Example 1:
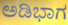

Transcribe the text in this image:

ಅಡಿಭಾಗ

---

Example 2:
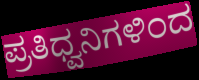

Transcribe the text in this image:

ಪ್ರತಿಧ್ವನಿಗಳಿಂದ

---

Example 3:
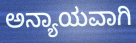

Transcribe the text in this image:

ಅನ್ಯಾಯವಾಗಿ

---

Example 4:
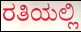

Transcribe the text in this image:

ರತಿಯಲ್ಲಿ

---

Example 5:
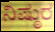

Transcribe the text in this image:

ನಿಷ್ಠುರ